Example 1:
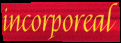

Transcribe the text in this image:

incorporeal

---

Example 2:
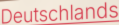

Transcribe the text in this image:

Deutschlands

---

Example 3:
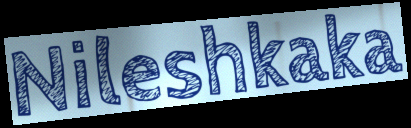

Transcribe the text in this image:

Nileshkaka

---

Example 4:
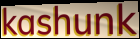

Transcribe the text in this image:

kashunk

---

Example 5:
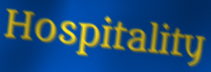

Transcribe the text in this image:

Hospitality